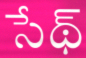
సేథ్